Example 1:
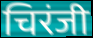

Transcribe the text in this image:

चिरंजी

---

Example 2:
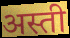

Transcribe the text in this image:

अस्ती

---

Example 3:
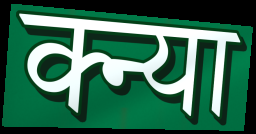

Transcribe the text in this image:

क्न्या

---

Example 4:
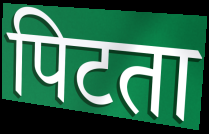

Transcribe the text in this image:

पिटता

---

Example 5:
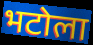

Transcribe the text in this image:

भटोला